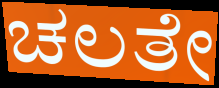
ಚಲತೇ